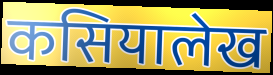
कसियालेख